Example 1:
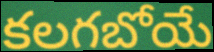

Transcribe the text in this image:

కలగబోయే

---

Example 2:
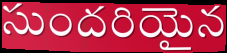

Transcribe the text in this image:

సుందరియైన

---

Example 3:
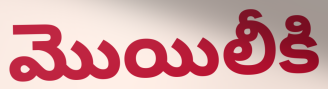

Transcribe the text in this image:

మొయిలీకి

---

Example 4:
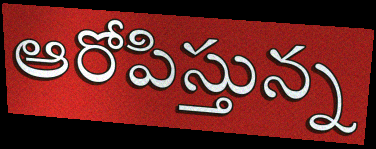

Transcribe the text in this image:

ఆరోపిస్తున్న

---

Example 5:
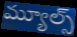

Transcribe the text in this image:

మ్యూల్స్